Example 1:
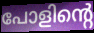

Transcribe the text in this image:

പോളിന്റെ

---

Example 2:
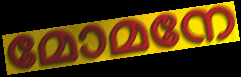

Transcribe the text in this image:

മോമനേ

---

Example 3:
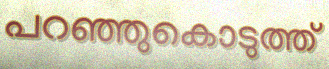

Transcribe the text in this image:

പറഞ്ഞുകൊടുത്ത്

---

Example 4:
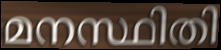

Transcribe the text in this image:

മനസ്ഥിതി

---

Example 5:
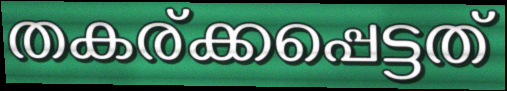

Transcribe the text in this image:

തകര്ക്കപ്പെട്ടത്